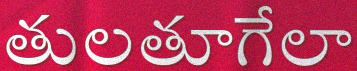
తులతూగేలా